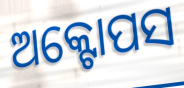
ଅକ୍ଟୋପସ